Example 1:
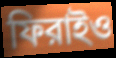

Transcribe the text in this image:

ফিরাইও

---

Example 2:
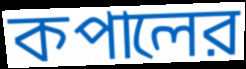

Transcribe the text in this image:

কপালের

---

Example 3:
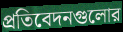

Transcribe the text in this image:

প্রতিবেদনগুলোর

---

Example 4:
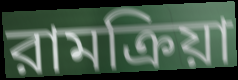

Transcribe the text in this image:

রামক্রিয়া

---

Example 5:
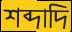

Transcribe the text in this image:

শব্দাদি